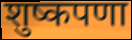
शुष्कपणा